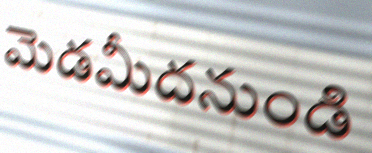
మెడమీదనుండి